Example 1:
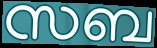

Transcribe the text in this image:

സബ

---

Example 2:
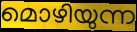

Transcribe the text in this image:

മൊഴിയുന്ന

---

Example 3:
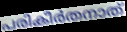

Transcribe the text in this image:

പരികീർതനാത്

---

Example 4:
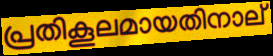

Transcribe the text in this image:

പ്രതികൂലമായതിനാല്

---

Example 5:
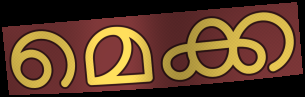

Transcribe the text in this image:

മെക്ക